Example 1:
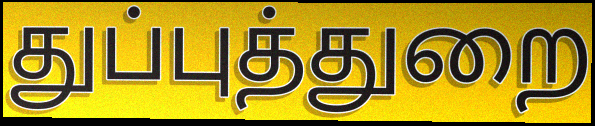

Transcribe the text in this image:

துப்புத்துறை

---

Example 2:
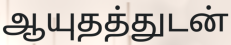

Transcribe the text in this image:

ஆயுதத்துடன்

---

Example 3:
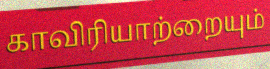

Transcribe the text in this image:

காவிரியாற்றையும்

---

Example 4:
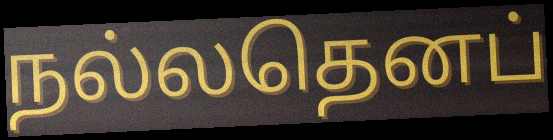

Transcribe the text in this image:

நல்லதெனப்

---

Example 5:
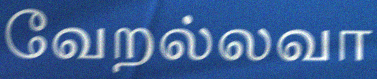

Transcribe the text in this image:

வேறல்லவா